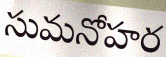
సుమనోహర